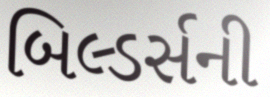
બિલ્ડર્સની